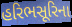
હરિભસૂરિના